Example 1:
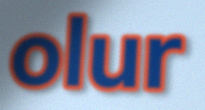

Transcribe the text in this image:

olur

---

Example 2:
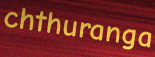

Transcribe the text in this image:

chthuranga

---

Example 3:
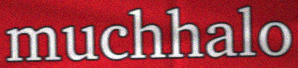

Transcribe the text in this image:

muchhalo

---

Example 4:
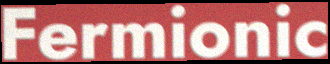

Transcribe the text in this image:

Fermionic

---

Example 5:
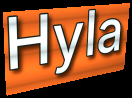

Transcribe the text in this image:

Hyla